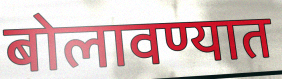
बोलावण्यात